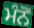
ਮੰਨੋਂ